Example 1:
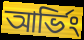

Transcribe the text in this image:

আর্ভিং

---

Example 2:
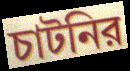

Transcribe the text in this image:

চাটনির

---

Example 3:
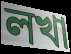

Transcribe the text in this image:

লখা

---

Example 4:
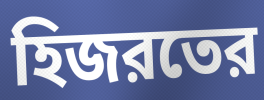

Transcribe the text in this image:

হিজরতের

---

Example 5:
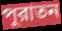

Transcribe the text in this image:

পুরাতন